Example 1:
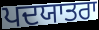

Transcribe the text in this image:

ਪਦਯਾਤਰਾ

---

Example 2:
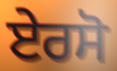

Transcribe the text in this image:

ਏਰਸੋ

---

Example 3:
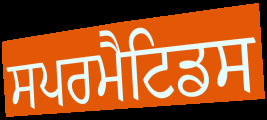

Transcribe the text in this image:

ਸਪਰਮੈਟਿਡਸ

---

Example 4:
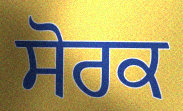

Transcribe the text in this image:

ਸੋਰਕ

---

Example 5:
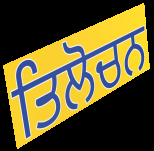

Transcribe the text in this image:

ਤਿਲੋਚਨ